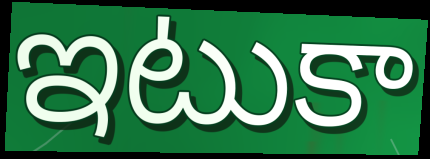
ఇటుకా